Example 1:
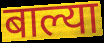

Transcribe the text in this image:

बाल्या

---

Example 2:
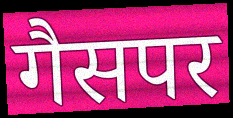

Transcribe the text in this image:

गैसपर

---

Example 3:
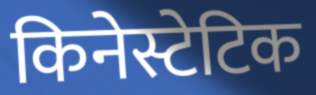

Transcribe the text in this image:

किनेस्टेटिक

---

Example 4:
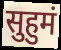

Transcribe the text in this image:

सुहुमं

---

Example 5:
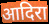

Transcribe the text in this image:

आदिरा